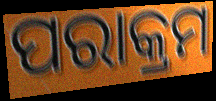
ପରାକ୍ରମ